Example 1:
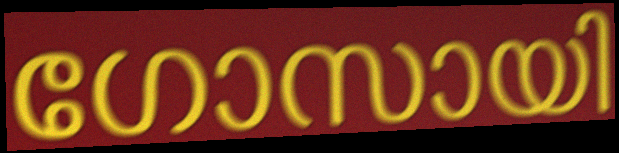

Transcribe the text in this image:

ഗോസായി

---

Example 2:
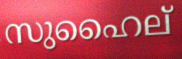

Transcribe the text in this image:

സുഹൈല്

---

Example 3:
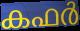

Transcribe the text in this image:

കഫർ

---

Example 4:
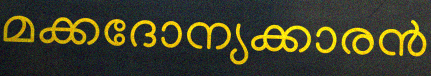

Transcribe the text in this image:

മക്കദോന്യക്കാരൻ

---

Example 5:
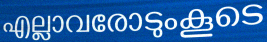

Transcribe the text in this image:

എല്ലാവരോടുംകൂടെ